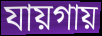
যায়গায়